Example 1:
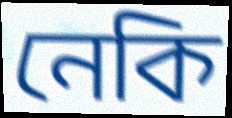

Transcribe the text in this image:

নেকি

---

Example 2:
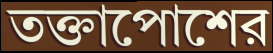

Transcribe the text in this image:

তক্তাপোশের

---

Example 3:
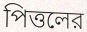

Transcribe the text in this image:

পিত্তলের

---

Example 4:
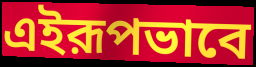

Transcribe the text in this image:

এইরূপভাবে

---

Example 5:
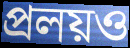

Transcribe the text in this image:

প্রলয়ও